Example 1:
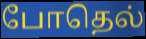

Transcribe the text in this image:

போதெல்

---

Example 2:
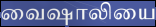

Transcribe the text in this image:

வைஷாலியை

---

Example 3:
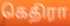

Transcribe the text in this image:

கெதிரா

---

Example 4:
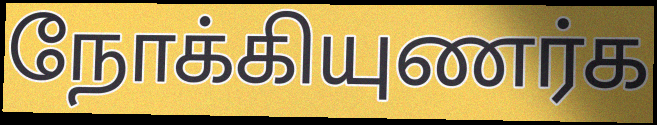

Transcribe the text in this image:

நோக்கியுணர்க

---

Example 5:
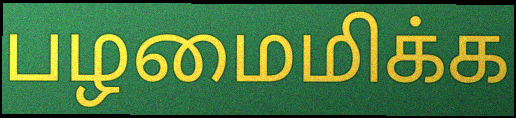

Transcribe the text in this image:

பழமைமிக்க